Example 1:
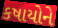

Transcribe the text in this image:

કષાયોને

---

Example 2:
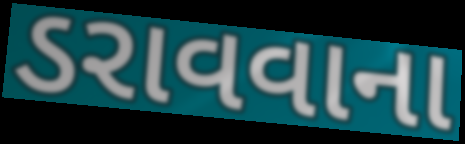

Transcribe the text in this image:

ડરાવવાના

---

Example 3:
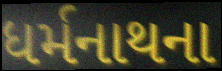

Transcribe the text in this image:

ધર્મનાથના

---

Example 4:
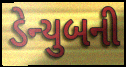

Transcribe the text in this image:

ડેન્યુબની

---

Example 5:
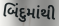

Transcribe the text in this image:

બિંદુમાંથી